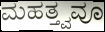
ಮಹತ್ತ್ವವೂ